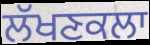
ਲੱਖਣਕਲਾ